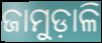
ଜାମୁଡ଼ାଳି